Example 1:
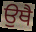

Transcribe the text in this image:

ਉਥੈ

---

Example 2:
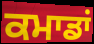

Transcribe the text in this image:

ਕਮਾਡਾਂ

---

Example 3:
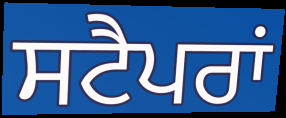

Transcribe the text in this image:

ਸਟੈਪਰਾਂ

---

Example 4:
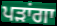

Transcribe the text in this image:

ਪੜਾਂਗਾ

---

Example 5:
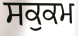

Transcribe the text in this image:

ਸਕੁਕਮ